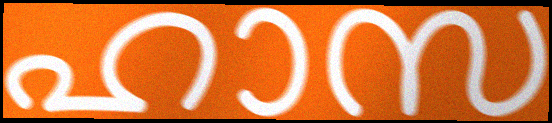
ഹാസ